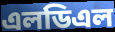
এলডিএল